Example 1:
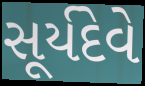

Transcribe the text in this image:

સૂર્યદેવે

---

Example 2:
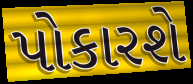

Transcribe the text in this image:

પોકારશે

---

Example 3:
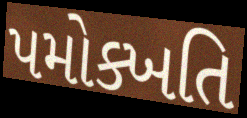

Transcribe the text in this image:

પમોક્ખતિ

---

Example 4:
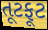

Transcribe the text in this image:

તૂટફૂટ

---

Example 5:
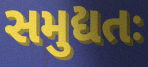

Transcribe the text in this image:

સમુદ્યતઃ